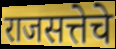
राजसत्तेचे